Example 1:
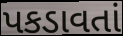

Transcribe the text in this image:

પકડાવતાં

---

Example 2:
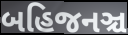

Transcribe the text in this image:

બહિજનઞ્ચ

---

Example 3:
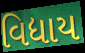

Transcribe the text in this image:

વિદ્યાય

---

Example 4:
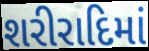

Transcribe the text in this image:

શરીરાદિમાં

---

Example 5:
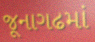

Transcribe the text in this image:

જૂનાગઢમાં